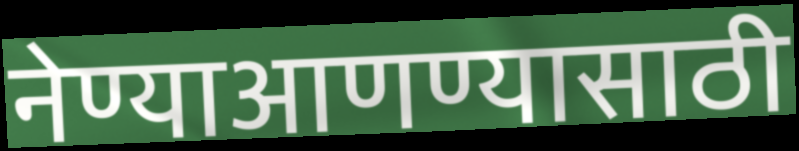
नेण्याआणण्यासाठी